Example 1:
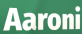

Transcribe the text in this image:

Aaroni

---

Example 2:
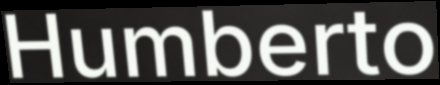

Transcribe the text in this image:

Humberto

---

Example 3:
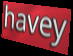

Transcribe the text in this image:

havey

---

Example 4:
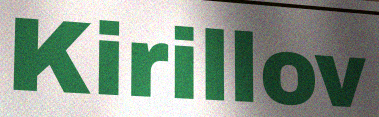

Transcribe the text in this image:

Kirillov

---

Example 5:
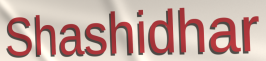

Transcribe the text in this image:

Shashidhar